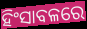
ହିଂସାବଳରେ